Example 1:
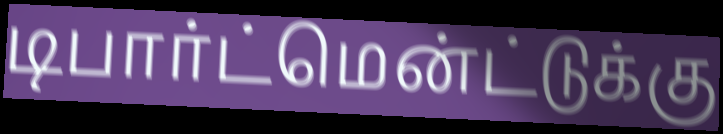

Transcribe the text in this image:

டிபார்ட்மென்ட்டுக்கு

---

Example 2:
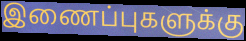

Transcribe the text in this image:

இணைப்புகளுக்கு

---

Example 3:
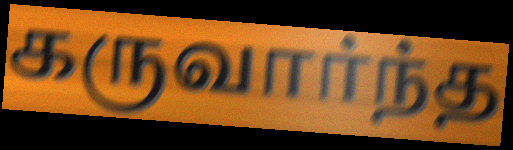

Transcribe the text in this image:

கருவார்ந்த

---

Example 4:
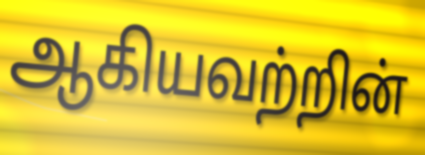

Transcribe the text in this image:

ஆகியவற்றின்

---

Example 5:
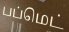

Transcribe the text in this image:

பப்மெட்